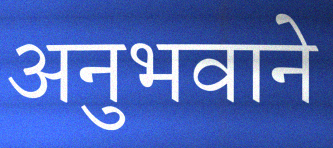
अनुभवाने